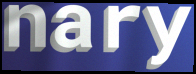
nary